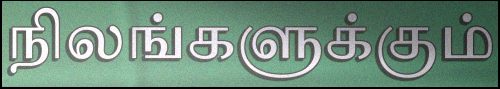
நிலங்களுக்கும்